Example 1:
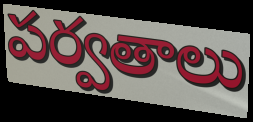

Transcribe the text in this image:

పర్వతాలు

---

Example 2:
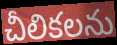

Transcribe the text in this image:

చీలికలను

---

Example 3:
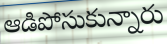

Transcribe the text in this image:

ఆడిపోసుకున్నారు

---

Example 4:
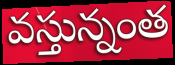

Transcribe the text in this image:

వస్తున్నంత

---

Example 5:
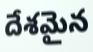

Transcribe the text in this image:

దేశమైన